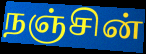
நஞ்சின்